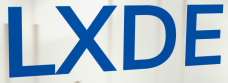
LXDE